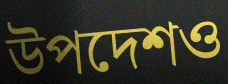
উপদেশও